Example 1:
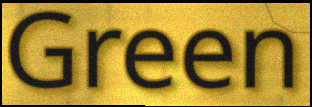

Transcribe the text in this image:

Green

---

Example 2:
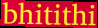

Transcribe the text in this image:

bhitithi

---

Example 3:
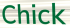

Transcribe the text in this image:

Chick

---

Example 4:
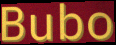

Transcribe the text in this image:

Bubo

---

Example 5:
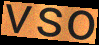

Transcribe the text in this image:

vso